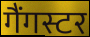
गैंगस्‍टर